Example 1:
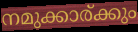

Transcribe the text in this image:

നമുക്കാര്ക്കും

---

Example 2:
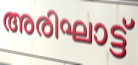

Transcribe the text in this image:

അരിഘാട്ട്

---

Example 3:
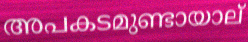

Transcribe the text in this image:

അപകടമുണ്ടായാല്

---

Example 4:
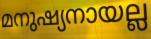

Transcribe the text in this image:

മനുഷ്യനായല്ല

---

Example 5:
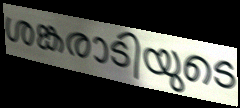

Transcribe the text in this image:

ശങ്കരാടിയുടെ